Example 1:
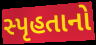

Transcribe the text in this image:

સ્પૃહતાનો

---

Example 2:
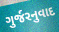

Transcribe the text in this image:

ગુર્જરનુવાદ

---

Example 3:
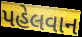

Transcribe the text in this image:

પહેલવાન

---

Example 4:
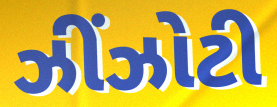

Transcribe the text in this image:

ઝીંઝોટી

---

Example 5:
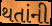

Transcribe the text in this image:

થતાંની